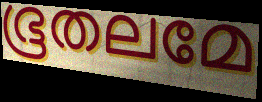
ഭൂതലമേ